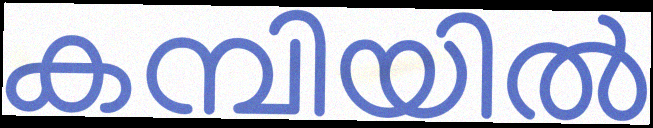
കമ്പിയിൽ